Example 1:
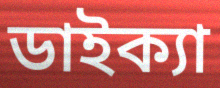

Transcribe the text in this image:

ডাইক্যা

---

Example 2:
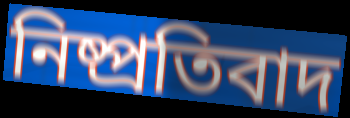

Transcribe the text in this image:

নিষ্প্রতিবাদ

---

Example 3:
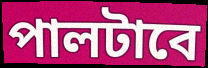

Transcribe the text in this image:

পালটাবে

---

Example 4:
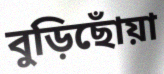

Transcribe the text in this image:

বুড়িছোঁয়া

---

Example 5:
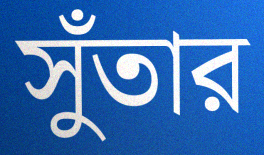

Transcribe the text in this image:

সুঁতার